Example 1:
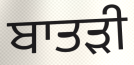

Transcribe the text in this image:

ਬਾਤੜੀ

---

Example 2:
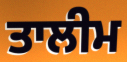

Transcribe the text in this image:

ਤਾਲੀਮ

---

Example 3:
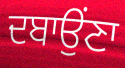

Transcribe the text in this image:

ਦਬਾਉਂਣਾ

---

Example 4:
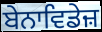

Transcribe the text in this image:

ਬੇਨਾਵਿਡੇਜ਼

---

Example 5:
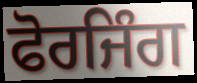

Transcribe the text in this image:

ਫੋਰਜਿੰਗ